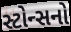
સ્ટોન્સનો